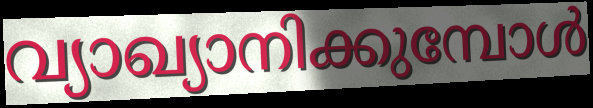
വ്യാഖ്യാനിക്കുമ്പോൾ